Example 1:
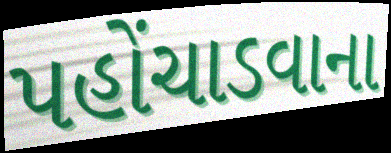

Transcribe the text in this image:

પહોંચાડવાના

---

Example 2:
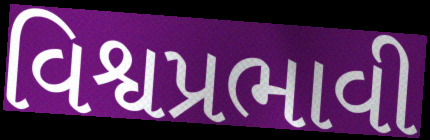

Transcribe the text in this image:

વિશ્વપ્રભાવી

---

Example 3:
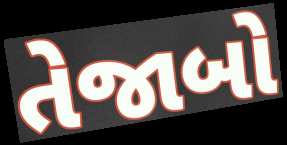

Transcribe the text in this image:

તેજાબો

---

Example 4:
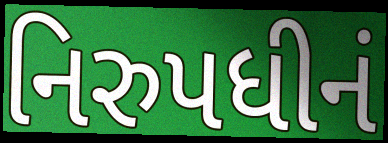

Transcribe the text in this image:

નિરુપધીનં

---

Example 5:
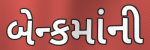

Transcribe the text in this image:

બેન્કમાંની